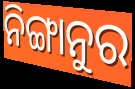
ନିଙ୍ଗାନୁର